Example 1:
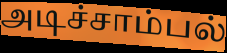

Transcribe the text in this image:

அடிச்சாம்பல்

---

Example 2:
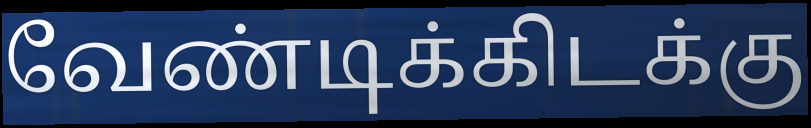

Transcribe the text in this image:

வேண்டிக்கிடக்கு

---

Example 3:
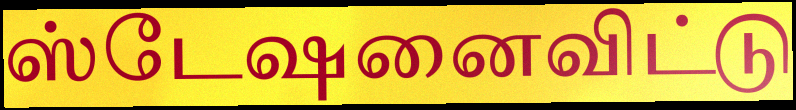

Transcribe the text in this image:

ஸ்டேஷனைவிட்டு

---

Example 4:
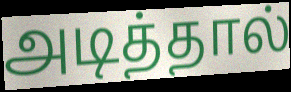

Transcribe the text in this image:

அடித்தால்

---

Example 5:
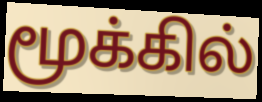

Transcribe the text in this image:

மூக்கில்